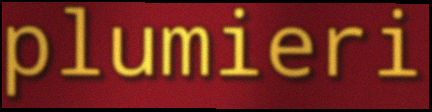
plumieri